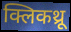
क्लिकथ्रू